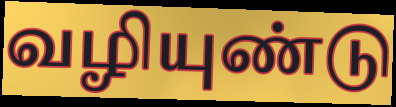
வழியுண்டு